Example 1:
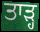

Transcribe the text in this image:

ਤਾੜ੍ਹ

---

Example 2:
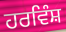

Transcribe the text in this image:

ਹਰਵਿੰਸ਼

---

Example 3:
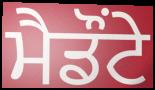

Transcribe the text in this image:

ਮੈਡੌਂਟੇ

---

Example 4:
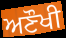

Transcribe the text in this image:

ਅਣੌਖੀ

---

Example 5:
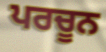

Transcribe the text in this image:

ਪਰਚੂਨ